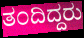
ತಂದಿದ್ದರು